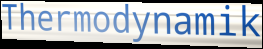
Thermodynamik